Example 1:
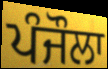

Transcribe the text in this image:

ਪੰਜੌਲਾ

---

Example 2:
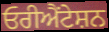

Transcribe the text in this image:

ਓਰੀਐਂਟੇਸ਼ਨ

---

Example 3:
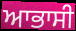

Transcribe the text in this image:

ਆਭਾਸੀ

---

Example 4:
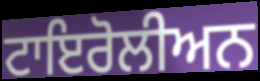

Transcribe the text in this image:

ਟਾਇਰੋਲੀਅਨ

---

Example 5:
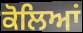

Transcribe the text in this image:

ਕੋਲਿਆਂ